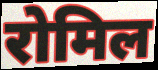
रोमिल